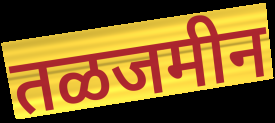
तळजमीन